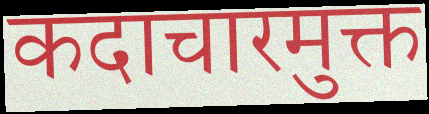
कदाचारमुक्त